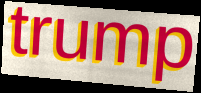
trump